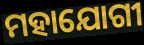
ମହାଯୋଗୀ